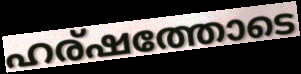
ഹര്ഷത്തോടെ